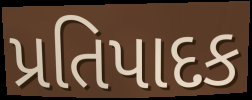
પ્રતિપાદક